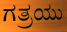
ಗತ್ರಯು